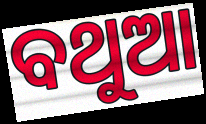
ବଥୁଆ